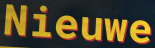
Nieuwe